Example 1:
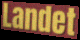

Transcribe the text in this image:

Landet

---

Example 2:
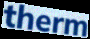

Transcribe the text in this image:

therm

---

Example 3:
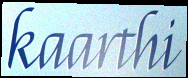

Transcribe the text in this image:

kaarthi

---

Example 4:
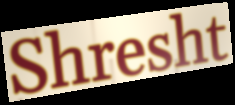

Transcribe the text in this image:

Shresht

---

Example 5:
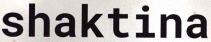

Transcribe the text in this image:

shaktina